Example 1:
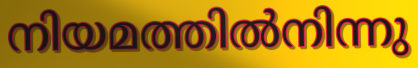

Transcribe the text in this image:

നിയമത്തിൽനിന്നു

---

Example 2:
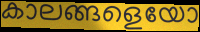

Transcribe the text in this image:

കാലങ്ങളെയോ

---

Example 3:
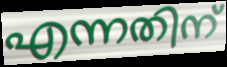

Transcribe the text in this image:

എന്നതിന്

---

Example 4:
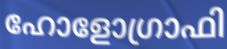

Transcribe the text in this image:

ഹോളോഗ്രാഫി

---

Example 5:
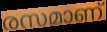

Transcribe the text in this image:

രസമാണ്